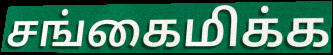
சங்கைமிக்க